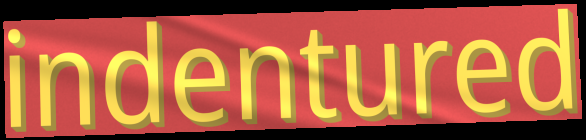
indentured